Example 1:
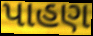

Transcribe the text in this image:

પાહણ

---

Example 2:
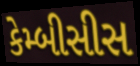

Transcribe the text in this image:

કેમ્બીસીસ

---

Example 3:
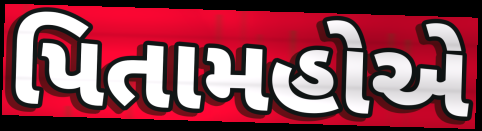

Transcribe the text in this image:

પિતામહોએ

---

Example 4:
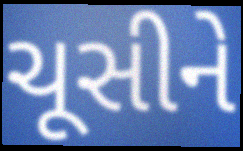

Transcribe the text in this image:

ચૂસીને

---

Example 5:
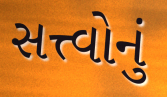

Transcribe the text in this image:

સત્ત્વોનું